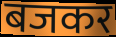
बजकर